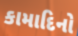
કામાદિનો